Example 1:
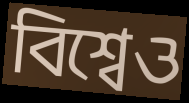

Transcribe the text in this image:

বিশ্বেও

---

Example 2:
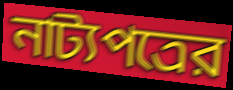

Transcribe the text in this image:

নাট্যপত্রের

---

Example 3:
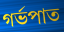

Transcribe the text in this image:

গর্ভপাত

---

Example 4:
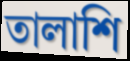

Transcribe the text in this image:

তালাশি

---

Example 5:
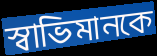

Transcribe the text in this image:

স্বাভিমানকে